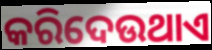
କରିଦେଉଥାଏ